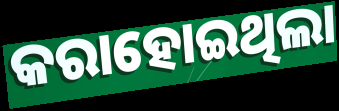
କରାହୋଇଥିଲା